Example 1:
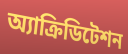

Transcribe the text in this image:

অ্যাক্রিডিটেশন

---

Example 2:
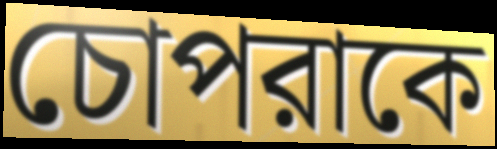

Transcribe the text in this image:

চোপরাকে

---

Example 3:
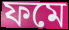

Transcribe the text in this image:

ফমে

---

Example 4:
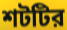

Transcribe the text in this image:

শটটির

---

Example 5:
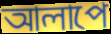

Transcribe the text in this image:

আলাপে